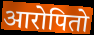
आरोपितो